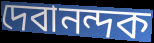
দেবানন্দক